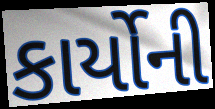
કાર્યોની